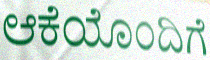
ಆಕೆಯೊಂದಿಗೆ